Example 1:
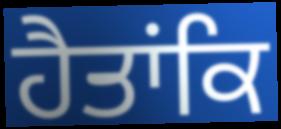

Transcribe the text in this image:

ਹੈਤਾਂਕਿ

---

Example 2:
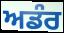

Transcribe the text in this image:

ਅਡੰਰ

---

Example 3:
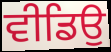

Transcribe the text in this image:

ਵੀਡਿਉ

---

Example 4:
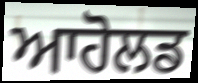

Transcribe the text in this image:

ਆਹੋਲਡ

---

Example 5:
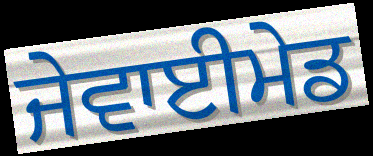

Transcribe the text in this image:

ਜੇਵਾਈਮੇਡ